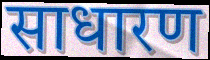
साधारण